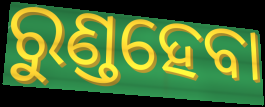
ରୁଣ୍ଡହେବା